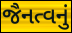
જૈનત્વનું